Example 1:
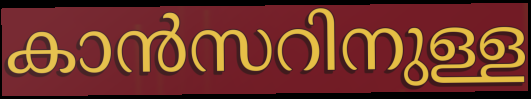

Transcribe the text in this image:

കാൻസറിനുള്ള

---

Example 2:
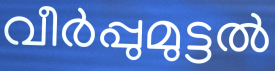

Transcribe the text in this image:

വീർപ്പുമുട്ടൽ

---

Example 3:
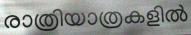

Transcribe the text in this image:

രാത്രിയാത്രകളിൽ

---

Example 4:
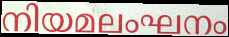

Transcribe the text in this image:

നിയമലംഘനം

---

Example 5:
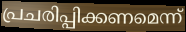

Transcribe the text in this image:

പ്രചരിപ്പിക്കണമെന്ന്